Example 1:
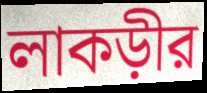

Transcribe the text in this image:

লাকড়ীর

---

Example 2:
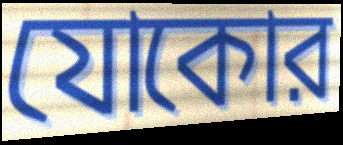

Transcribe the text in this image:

যোকোর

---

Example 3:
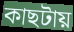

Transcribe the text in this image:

কাছটায়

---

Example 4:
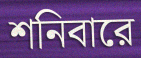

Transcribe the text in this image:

শনিবারে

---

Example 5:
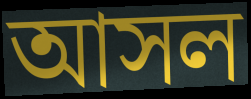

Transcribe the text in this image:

আসল